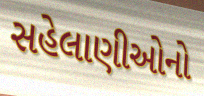
સહેલાણીઓનો